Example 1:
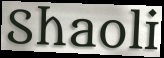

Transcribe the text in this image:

Shaoli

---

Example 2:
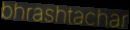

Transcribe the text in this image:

bhrashtachar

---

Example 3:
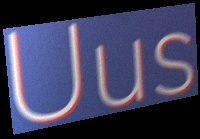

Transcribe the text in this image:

Uus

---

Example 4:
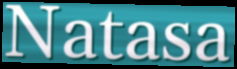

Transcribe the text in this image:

Natasa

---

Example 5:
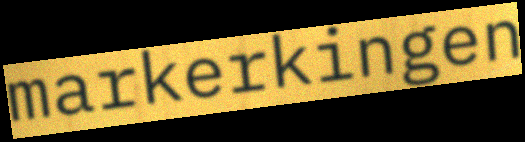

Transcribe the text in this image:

markerkingen